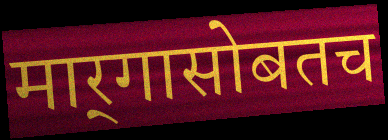
मार्गासोबतच